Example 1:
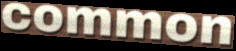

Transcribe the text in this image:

common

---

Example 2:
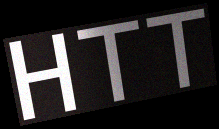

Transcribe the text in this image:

HTT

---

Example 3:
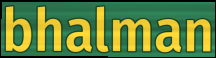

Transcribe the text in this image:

bhalman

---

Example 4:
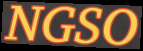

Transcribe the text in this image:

NGSO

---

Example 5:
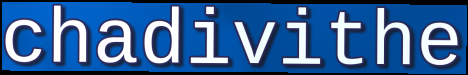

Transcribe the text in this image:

chadivithe